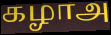
கழாஅ